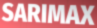
SARIMAX